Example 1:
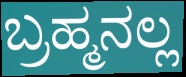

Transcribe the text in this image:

ಬ್ರಹ್ಮನಲ್ಲ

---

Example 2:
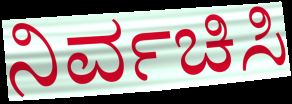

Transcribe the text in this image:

ನಿರ್ವಚಿಸಿ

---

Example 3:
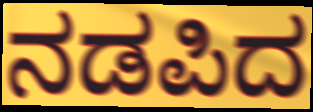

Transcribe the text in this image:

ನಡಪಿದ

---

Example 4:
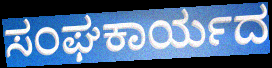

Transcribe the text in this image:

ಸಂಘಕಾರ್ಯದ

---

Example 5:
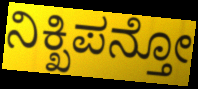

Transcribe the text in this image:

ನಿಕ್ಖಿಪನ್ತೋ